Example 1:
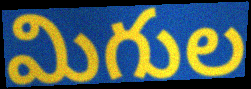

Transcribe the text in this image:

మిగుల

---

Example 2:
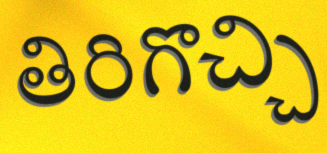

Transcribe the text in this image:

తిరిగొచ్చి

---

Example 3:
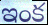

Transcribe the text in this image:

ఇంక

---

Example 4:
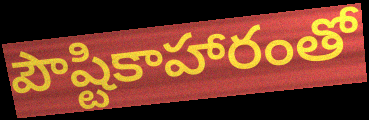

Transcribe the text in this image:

పౌష్టికాహారంతో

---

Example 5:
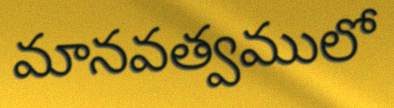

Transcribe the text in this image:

మానవత్వములో